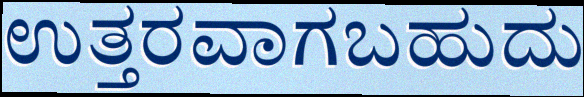
ಉತ್ತರವಾಗಬಹುದು